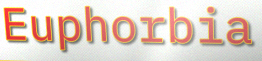
Euphorbia